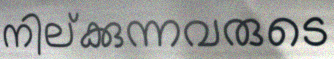
നില്ക്കുന്നവരുടെ